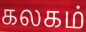
கலகம்